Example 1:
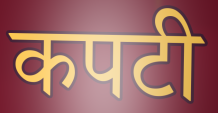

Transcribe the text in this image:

कपटी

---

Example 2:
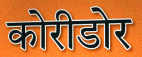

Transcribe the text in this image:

कोरीडोर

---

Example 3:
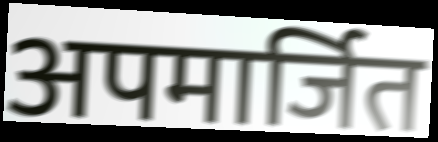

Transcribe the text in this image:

अपमार्जित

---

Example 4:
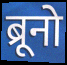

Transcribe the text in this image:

ब्रूनो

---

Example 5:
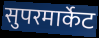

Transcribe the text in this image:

सुपरमार्केट